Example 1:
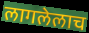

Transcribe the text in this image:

लागलेलाच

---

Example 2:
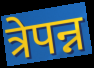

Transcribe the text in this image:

त्रेपन्न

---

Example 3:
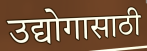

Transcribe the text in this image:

उद्योगासाठी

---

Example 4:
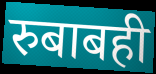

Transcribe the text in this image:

रुबाबही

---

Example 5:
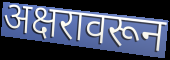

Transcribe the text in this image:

अक्षरावरून